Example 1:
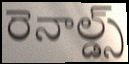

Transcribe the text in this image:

రెనాల్డ్స్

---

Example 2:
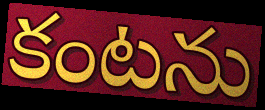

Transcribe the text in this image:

కంటను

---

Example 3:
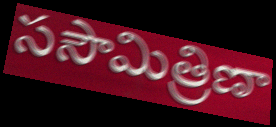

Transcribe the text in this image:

ససౌమిత్రిణా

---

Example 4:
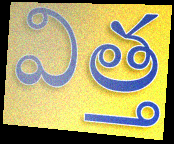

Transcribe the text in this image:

విత్త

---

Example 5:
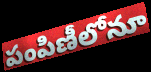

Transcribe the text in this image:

పంపిణీలోనూ